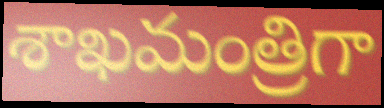
శాఖమంత్రిగా